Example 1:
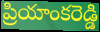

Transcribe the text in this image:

ప్రియాంకరెడ్డి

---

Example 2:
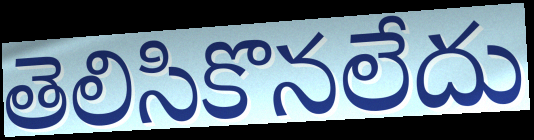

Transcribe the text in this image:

తెలిసికొనలేదు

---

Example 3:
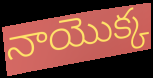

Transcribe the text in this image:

నాయొక్క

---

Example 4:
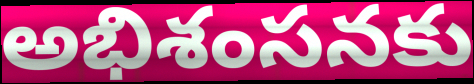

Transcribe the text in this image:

అభిశంసనకు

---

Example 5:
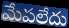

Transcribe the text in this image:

మేపలేదు